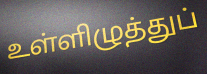
உள்ளிழுத்துப்